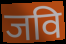
जवि